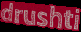
drushti